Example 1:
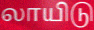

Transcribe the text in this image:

லாயிடு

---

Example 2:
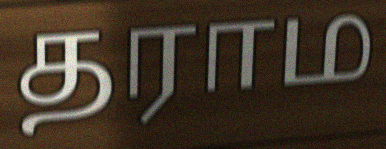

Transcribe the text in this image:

தராம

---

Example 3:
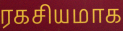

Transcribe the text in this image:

ரகசியமாக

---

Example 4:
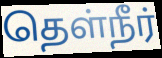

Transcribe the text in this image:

தெள்நீர்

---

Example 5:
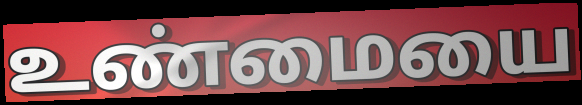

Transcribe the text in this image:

உண்மையை